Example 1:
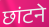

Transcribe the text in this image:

छांटने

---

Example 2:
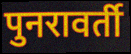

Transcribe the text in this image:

पुनरावर्ती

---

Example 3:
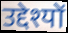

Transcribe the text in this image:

उद्देश्यों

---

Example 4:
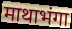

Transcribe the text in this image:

माथाभंगा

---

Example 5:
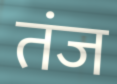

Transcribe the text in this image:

तंज